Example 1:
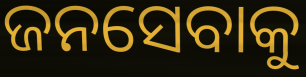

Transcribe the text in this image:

ଜନସେବାକୁ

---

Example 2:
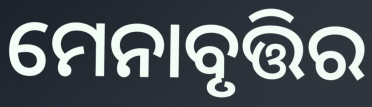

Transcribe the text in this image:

ମେନାବୃତ୍ତିର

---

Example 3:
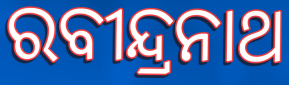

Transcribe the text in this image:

ରବୀନ୍ଦ୍ରନାଥ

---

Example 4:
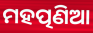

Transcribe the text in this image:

ମହତ୍ପଣିଆ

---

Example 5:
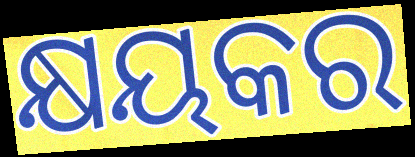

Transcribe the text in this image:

କ୍ଷୟକର